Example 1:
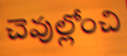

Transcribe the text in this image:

చెవుల్లోంచి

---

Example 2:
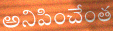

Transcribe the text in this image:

అనిపించేంత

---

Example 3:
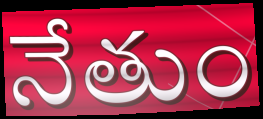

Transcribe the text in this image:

నేతుం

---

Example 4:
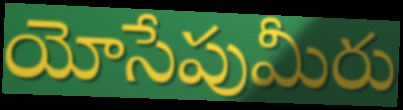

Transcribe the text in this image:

యోసేపుమీరు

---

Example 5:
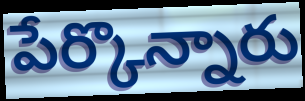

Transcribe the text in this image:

పేర్కొన్నారు